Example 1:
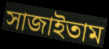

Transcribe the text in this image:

সাজাইতাম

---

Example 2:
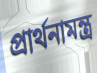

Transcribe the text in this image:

প্রার্থনামন্ত্র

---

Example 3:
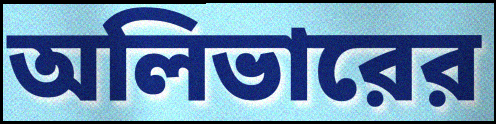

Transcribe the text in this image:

অলিভারের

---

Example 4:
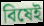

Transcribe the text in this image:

বিষেই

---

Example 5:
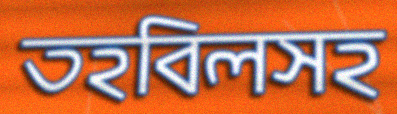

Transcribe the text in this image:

তহবিলসহ